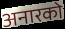
अनारको